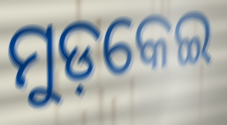
ମୁଡ଼କେଇ